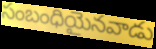
సంబంధియైనవాడు